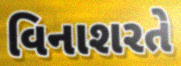
વિનાશરતે